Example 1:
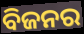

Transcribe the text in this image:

ବିଜନର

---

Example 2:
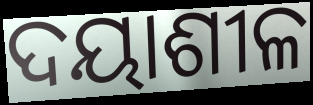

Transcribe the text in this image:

ଦୟାଶୀଳ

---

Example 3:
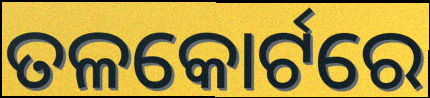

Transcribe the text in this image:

ତଳକୋର୍ଟରେ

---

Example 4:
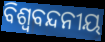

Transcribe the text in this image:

ବିଶ୍ୱବନ୍ଦନୀୟ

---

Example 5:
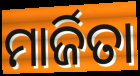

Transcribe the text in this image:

ମାର୍ଜିତା